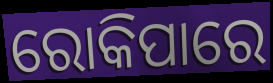
ରୋକିପାରେ